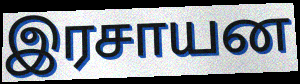
இரசாயன